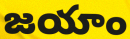
జయాం